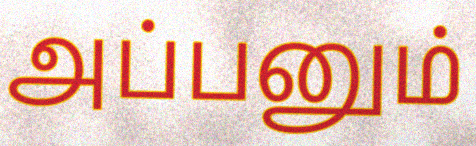
அப்பனும்